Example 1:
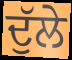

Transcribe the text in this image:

ਦੁੱਲੇ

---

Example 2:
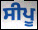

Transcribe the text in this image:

ਸੀਪੂ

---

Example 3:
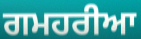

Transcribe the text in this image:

ਗਮਹਰੀਆ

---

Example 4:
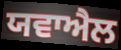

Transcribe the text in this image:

ਯਵਾਐਲ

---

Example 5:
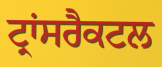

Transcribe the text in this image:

ਟ੍ਰਾਂਸਰੈਕਟਲ